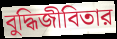
বুদ্ধিজীবিতার